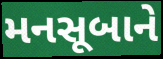
મનસૂબાને